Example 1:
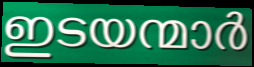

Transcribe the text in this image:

ഇടയന്മാർ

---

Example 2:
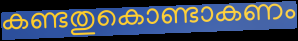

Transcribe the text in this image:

കണ്ടതുകൊണ്ടാകണം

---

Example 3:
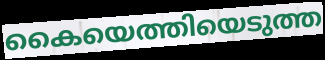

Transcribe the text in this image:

കൈയെത്തിയെടുത്ത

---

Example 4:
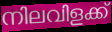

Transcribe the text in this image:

നിലവിളക്ക്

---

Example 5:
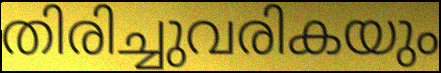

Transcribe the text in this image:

തിരിച്ചുവരികയും